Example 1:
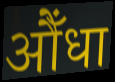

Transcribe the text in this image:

औँधा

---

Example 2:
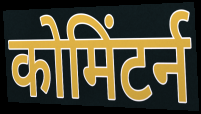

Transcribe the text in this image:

कोमिंटर्न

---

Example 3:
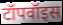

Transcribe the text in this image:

टॉपवॉइस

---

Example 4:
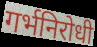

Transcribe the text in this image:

गर्भनिरोधी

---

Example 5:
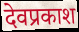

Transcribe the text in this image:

देवप्रकाश